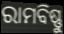
ରାମବିଷ୍ଣୁ